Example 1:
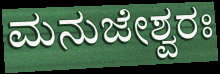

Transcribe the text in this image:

ಮನುಜೇಶ್ವರಃ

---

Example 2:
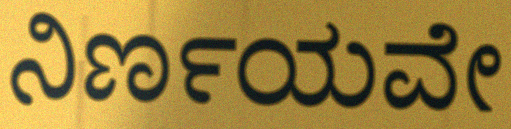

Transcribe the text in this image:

ನಿರ್ಣಯವೇ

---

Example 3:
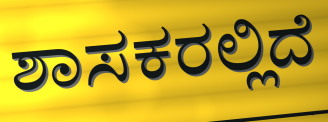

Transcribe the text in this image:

ಶಾಸಕರಲ್ಲಿದೆ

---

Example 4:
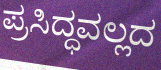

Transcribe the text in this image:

ಪ್ರಸಿದ್ಧವಲ್ಲದ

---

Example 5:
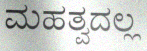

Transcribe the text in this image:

ಮಹತ್ವದಲ್ಲ